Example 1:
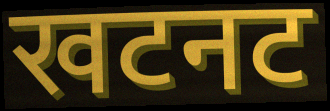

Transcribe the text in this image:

खटनट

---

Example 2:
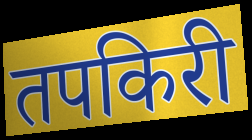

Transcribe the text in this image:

तपकिरी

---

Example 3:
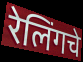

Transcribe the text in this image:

रेलिंगचे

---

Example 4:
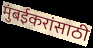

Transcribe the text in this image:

मुंबईकरांसाठी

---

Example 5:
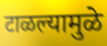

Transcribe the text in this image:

टाळल्यामुळे